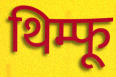
थिम्फू